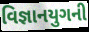
વિજ્ઞાનયુગની